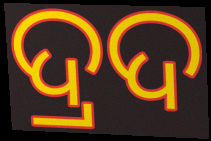
ଦ୍ରଦ